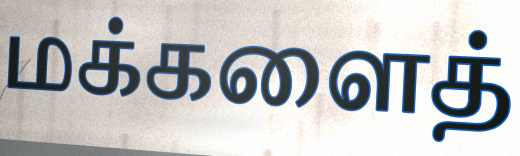
மக்களைத்